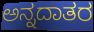
ಅನ್ನದಾತರ